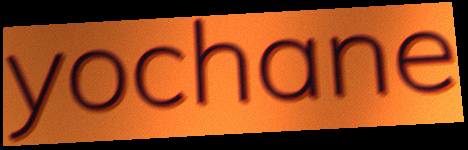
yochane